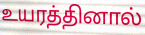
உயரத்தினால்